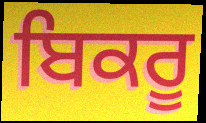
ਬਿਕਰੂ